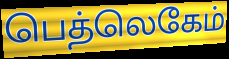
பெத்லெகேம்